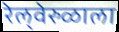
रेल्वेरुळाला